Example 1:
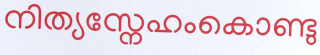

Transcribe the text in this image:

നിത്യസ്നേഹംകൊണ്ടു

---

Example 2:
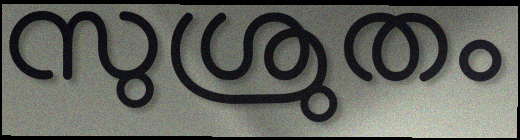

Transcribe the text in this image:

സുശ്രുതം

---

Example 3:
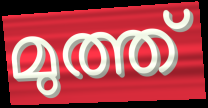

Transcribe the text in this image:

മുത്ത്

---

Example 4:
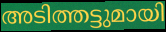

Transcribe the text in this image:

അടിത്തട്ടുമായി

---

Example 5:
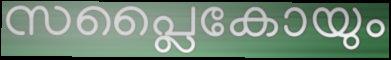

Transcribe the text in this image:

സപ്ലൈകോയും